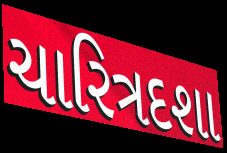
ચારિત્રદશા